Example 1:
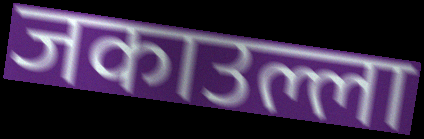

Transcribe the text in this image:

जकाउल्ला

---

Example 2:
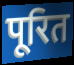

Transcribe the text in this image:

पूरित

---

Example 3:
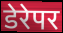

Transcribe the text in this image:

डेरेपर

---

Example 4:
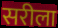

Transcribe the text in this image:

सरीला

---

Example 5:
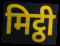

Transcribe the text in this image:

मिट्ठी